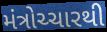
મંત્રોચ્ચારથી